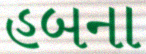
હબના